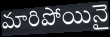
మారిపోయినై